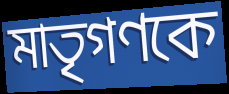
মাতৃগণকে